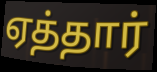
ஏத்தார்